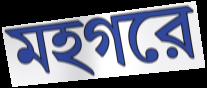
মহগরে